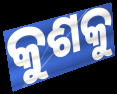
କୁଶକୁ